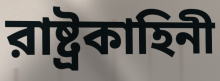
রাষ্ট্রকাহিনী